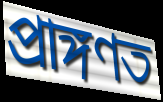
প্ৰাঙ্গণত